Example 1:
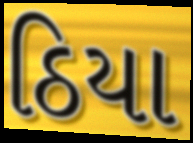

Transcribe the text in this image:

ઠિયા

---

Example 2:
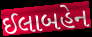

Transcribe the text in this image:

ઈલાબહેન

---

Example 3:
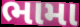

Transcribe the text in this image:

ભામા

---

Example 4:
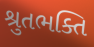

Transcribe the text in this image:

શ્રુતભક્તિ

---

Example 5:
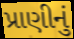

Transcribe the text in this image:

પ્રાણીનું